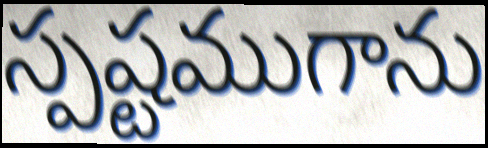
స్పష్టముగాను